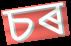
চৰ